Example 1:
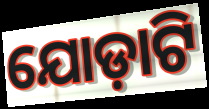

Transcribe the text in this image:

ଯୋଡ଼ାଟି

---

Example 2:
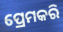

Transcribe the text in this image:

ପ୍ରେମକରି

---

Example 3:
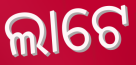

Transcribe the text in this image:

ଲାଟେ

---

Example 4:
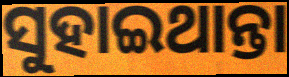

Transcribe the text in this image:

ସୁହାଇଥାନ୍ତା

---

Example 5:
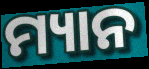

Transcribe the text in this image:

ମ୍ୟାନ